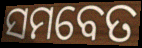
ସମବେତ